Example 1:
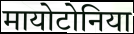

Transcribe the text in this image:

मायोटोनिया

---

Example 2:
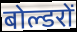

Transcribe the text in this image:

बोल्डरों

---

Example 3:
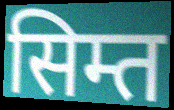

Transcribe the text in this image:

सिम्त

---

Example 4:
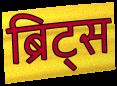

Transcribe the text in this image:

ब्रिट्स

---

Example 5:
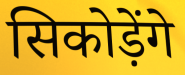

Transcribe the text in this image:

सिकोड़ेंगे